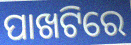
ପାଖଟିରେ